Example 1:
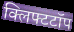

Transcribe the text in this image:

क्लिफ्टटॉप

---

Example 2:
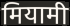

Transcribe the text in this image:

मियामी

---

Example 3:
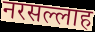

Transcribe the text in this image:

नरसल्लाह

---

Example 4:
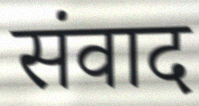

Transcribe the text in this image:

संवाद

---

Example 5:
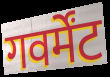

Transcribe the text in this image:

गवर्मेंट